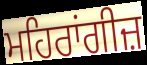
ਮਹਿਰਾਂਗੀਜ਼